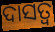
ଦାସତ୍ବ